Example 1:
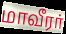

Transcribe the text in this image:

மாவீரர்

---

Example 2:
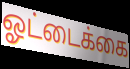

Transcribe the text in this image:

ஓட்டைக்கை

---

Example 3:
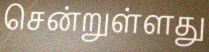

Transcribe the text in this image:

சென்றுள்ளது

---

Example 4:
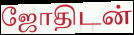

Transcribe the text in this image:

ஜோதிடன்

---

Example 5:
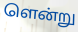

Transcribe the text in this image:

ளென்று